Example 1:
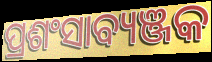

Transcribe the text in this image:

ପ୍ରଶଂସାବ୍ୟଞ୍ଜକ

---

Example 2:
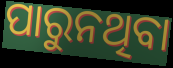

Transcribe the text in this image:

ପାରୁନଥିବା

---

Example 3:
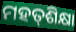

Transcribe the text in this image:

ମହତ୍‌ଶିକ୍ଷା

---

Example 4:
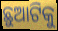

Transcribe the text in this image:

ଛୁଆଟିକୁ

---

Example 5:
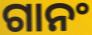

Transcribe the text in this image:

ଗାନଂ